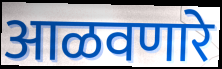
आळवणारे